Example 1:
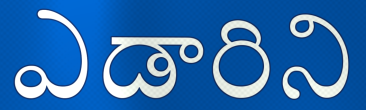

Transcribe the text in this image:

ఎడారిని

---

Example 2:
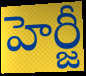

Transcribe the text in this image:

హెర్జీ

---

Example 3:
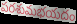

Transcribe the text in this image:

పరశుమభయదం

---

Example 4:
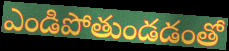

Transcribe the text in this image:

ఎండిపోతుండడంతో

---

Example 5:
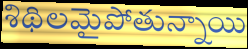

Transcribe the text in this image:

శిథిలమైపోతున్నాయి